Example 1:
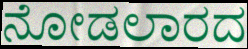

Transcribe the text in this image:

ನೋಡಲಾರದ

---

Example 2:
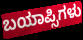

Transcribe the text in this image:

ಬಯಾಪ್ಸಿಗಳು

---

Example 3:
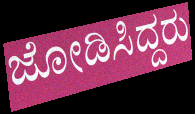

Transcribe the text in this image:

ಜೋಡಿಸಿದ್ದರು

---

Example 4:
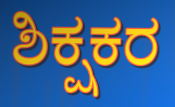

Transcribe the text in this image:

ಶಿಕ್ಷಕರ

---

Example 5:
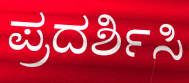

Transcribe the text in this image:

ಪ್ರದರ್ಶಿಸಿ